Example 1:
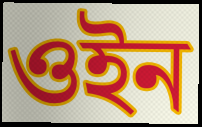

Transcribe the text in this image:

ওইন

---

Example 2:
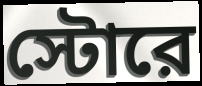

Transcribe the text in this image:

স্টোরে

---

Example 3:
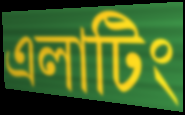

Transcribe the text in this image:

এলাটিং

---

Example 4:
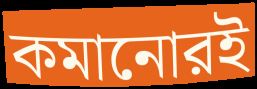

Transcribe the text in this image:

কমানোরই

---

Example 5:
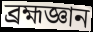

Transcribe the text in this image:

ব্রহ্মজ্ঞান